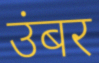
उंबर